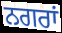
ਨਗਰਾਂ